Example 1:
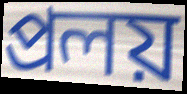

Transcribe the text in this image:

প্ৰলয়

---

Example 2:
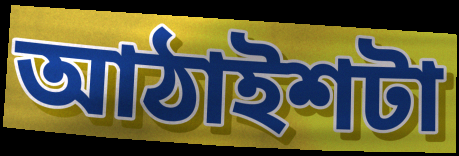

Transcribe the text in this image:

আঠাইশটা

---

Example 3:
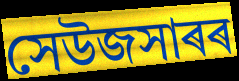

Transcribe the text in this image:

সেউজসাৰৰ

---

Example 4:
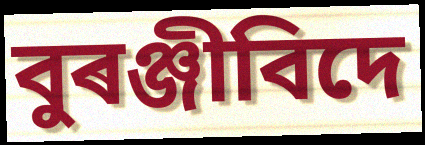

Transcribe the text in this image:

বুৰঞ্জীবিদে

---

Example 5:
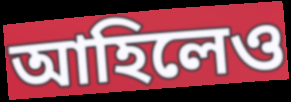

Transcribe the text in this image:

আহিলেও